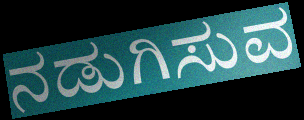
ನಡುಗಿಸುವ